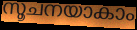
സൂചനയാകാം